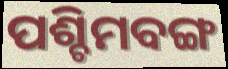
ପଶ୍ଚିମବଙ୍ଗ